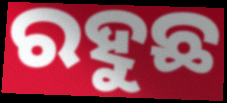
ରହୁଛ